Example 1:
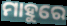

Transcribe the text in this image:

ମାହୁରେ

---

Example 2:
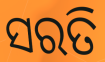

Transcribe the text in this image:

ସରତି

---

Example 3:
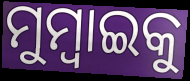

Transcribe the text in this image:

ମୁମ୍ବାଇକୁ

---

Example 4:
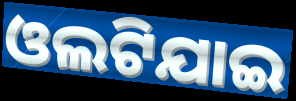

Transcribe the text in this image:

ଓଲଟିଯାଇ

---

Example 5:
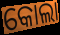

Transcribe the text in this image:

କୋଲା